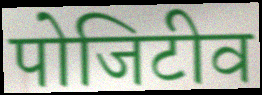
पोजिटीव